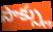
సాక్స్లు